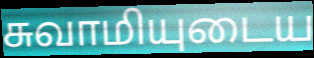
சுவாமியுடைய